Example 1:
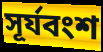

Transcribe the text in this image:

সূর্যবংশ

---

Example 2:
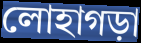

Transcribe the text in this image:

লোহাগড়া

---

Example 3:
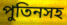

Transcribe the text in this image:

পুতিনসহ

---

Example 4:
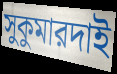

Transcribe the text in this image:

সুকুমারদাই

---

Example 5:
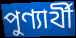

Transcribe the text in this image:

পুণ্যার্থী